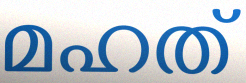
മഹത്